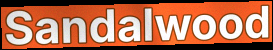
Sandalwood